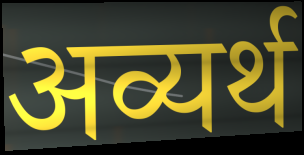
अव्यर्थ